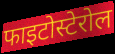
फाइटोस्टेरोल